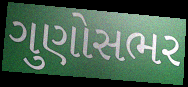
ગુણોસભર